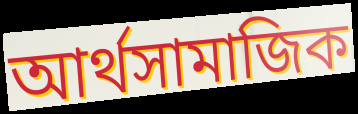
আৰ্থসামাজিক